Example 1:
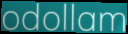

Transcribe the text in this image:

odollam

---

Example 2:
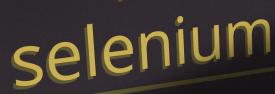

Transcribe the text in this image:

selenium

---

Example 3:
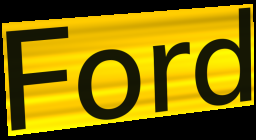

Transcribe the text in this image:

Ford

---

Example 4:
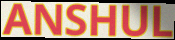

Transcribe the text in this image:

ANSHUL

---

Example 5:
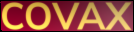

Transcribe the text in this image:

COVAX